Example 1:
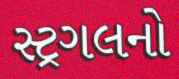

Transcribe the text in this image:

સ્ટ્રગલનો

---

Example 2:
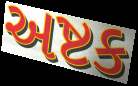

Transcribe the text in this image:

અષ્ટક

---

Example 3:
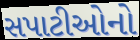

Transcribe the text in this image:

સપાટીઓનો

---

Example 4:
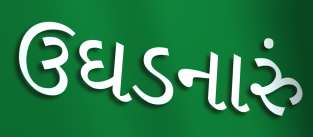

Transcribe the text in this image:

ઉઘડનારું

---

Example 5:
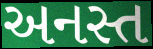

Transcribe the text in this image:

અનસ્ત